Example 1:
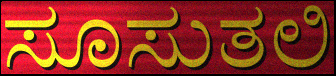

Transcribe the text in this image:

ಸೂಸುತಲಿ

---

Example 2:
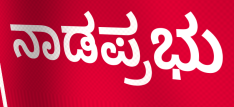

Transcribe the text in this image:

ನಾಡಪ್ರಭು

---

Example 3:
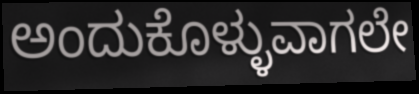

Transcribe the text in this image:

ಅಂದುಕೊಳ್ಳುವಾಗಲೇ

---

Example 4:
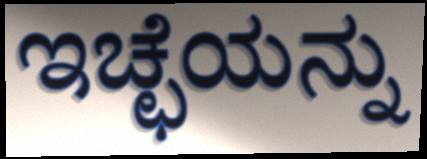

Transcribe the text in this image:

ಇಚ್ಛೆಯನ್ನು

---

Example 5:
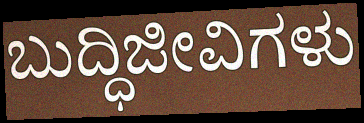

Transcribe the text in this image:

ಬುದ್ಧಿಜೀವಿಗಳು